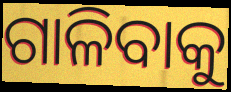
ଗାଳିବାକୁ